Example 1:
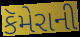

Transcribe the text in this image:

કૅમેરાની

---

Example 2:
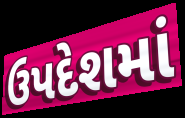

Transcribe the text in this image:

ઉપદેશમાં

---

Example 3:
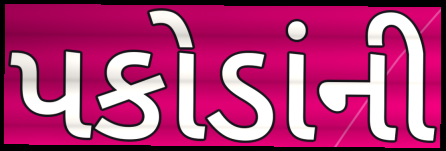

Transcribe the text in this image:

પકોડાંની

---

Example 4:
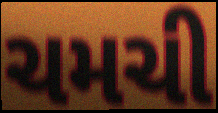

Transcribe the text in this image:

ચમચી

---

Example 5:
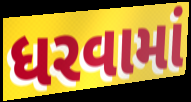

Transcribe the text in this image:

ધરવામાં